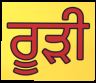
ਰੂੜੀ